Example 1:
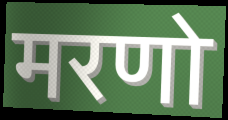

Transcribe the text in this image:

मरणो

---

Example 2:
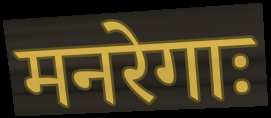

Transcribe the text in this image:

मनरेगाः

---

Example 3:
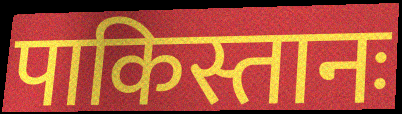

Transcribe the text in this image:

पाकिस्तानः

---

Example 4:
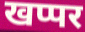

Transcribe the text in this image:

खप्पर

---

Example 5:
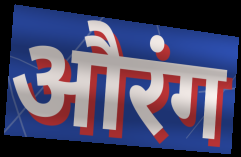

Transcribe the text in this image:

औरंग